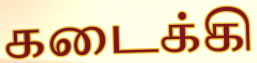
கடைக்கி